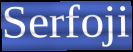
Serfoji